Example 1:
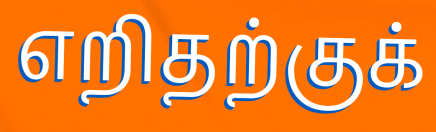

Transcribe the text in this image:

எறிதற்குக்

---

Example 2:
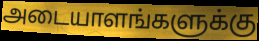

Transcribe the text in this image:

அடையாளங்களுக்கு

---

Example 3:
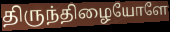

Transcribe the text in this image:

திருந்திழையோளே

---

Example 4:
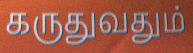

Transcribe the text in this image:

கருதுவதும்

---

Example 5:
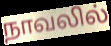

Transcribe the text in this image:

நாவலில்